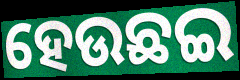
ହେଉଛଇ